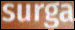
surga